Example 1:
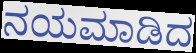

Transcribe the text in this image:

ನಯಮಾಡಿದ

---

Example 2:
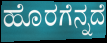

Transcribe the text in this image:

ಹೊರಗೆನ್ನದೆ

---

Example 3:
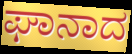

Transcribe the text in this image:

ಘಾನಾದ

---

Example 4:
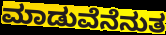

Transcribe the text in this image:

ಮಾಡುವೆನೆನುತ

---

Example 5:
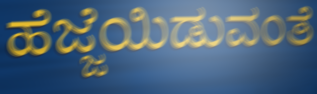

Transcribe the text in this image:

ಹೆಜ್ಜೆಯಿಡುವಂತೆ